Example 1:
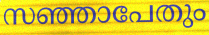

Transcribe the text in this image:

സഞ്ഞാപേതും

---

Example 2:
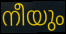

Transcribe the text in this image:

നീയും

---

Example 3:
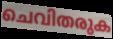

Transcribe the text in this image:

ചെവിതരുക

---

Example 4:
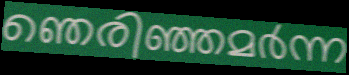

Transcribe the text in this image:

ഞെരിഞ്ഞമർന്ന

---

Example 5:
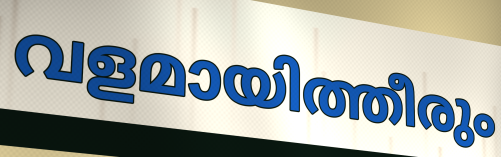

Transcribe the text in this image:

വളമായിത്തീരും